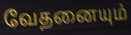
வேதனையும்